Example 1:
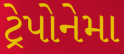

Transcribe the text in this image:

ટ્રેપોનેમા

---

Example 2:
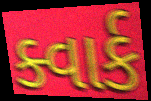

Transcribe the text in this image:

ક્વાર્ક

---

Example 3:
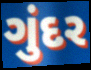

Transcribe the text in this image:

ગુંદર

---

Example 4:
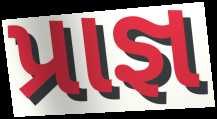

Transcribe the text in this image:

પ્રાજ્ઞ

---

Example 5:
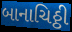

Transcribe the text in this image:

બાનાચિઠ્ઠી